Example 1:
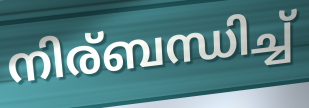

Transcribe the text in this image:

നിര്ബന്ധിച്ച്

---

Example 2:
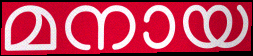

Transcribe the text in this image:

മനായ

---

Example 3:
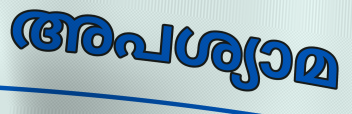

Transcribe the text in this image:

അപശ്യാമ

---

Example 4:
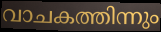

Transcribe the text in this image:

വാചകത്തിന്നും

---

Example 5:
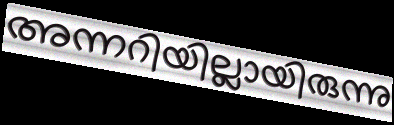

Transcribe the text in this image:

അന്നറിയില്ലായിരുന്നു